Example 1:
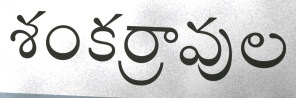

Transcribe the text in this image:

శంకర్రావుల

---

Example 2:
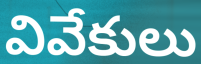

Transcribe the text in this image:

వివేకులు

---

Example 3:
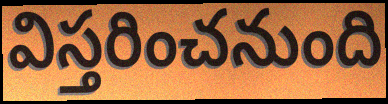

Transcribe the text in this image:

విస్తరించనుంది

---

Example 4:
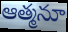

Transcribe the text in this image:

ఆత్మనూ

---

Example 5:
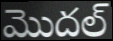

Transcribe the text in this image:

మొదల్